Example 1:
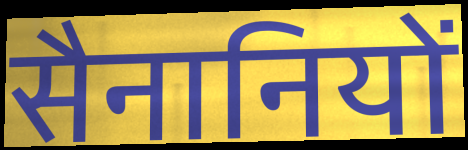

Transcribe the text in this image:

सैनानियों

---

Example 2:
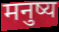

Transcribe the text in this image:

मनुष्‍य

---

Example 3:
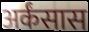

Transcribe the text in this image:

अर्कंसास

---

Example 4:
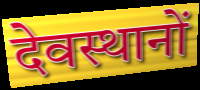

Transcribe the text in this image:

देवस्थानों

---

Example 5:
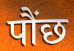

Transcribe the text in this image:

पौंछ